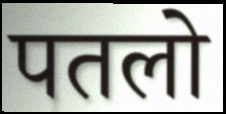
पतलो